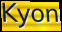
Kyon